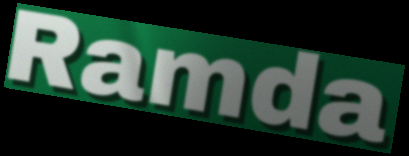
Ramda